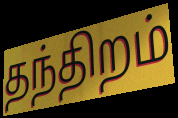
தந்திறம்